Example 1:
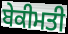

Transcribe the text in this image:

ਬੇਕੀਮਤੀ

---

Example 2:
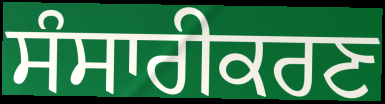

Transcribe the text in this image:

ਸੰਸਾਰੀਕਰਣ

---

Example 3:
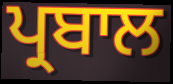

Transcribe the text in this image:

ਪ੍ਰਬਾਲ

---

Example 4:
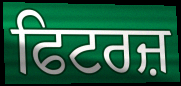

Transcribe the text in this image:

ਫਿਟਰਜ਼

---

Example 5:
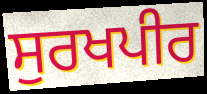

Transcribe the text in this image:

ਸੁਰਖਪੀਰ